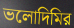
ভলোদিমির